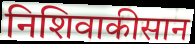
निशिवाकीसान